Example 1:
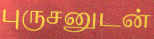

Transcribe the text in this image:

புருசனுடன்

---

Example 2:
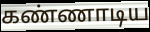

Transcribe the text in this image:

கண்ணாடிய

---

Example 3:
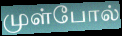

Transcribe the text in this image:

முள்போல்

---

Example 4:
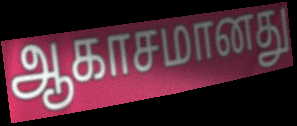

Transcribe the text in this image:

ஆகாசமானது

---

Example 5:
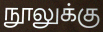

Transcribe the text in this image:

நூலுக்கு